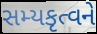
સમ્યકૃત્વને